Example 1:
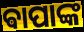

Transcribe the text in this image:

ଵାପାଙ୍କ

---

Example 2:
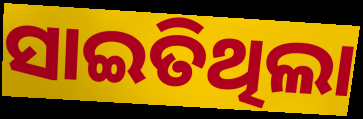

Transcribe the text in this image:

ସାଇତିଥିଲା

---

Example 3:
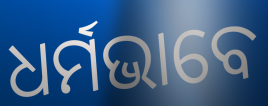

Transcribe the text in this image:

ଧର୍ମଭାବେ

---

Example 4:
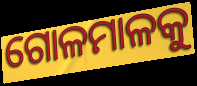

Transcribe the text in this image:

ଗୋଳମାଳକୁ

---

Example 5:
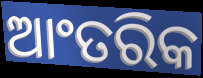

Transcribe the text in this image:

ଆଂତରିକ